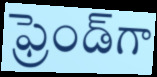
ఫ్రెండ్‌గా